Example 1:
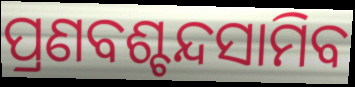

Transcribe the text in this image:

ପ୍ରଣବଶ୍ଚନ୍ଦସାମିବ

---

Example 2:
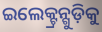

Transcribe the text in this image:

ଇଲେକ୍ଟ୍ରନ୍ଗୁଡ଼ିକୁ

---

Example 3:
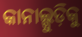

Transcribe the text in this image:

କାନାଲ୍ଗୁଡ଼ିକୁ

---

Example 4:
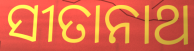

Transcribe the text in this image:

ସୀତାନାଥ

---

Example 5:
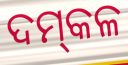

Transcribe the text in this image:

ଦମ୍‌କଳ